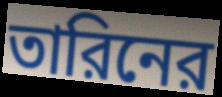
তারিনের